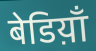
बेडिय़ाँ